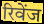
रिवेंज